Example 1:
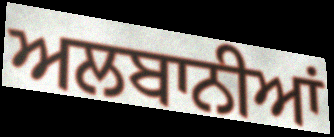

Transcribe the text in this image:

ਅਲਬਾਨੀਆਂ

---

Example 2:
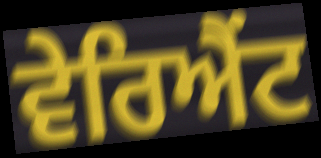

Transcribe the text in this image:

ਵੇਰਿਐਂਟ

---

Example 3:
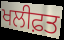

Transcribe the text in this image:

ਖਲੀਫ਼ਤ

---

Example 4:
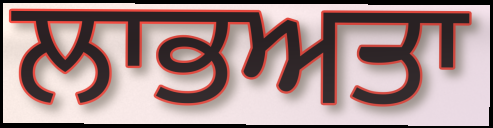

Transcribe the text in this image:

ਲਾਭਅਤਾ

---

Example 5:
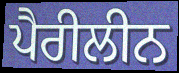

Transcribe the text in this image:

ਪੈਰੀਲੀਨ